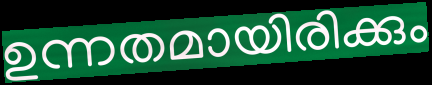
ഉന്നതമായിരിക്കും